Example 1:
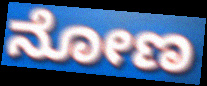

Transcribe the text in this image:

ನೋಣ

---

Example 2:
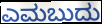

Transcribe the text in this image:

ಎಮಬುದು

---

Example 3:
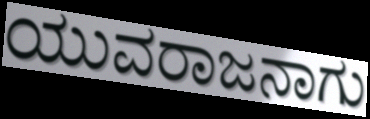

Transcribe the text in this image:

ಯುವರಾಜನಾಗು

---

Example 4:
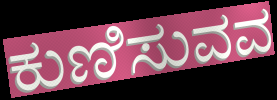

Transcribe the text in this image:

ಕುಣಿಸುವವ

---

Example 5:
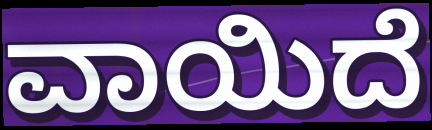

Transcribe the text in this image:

ವಾಯಿದೆ